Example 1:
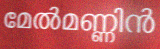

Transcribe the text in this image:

മേൽമണ്ണിൻ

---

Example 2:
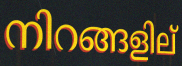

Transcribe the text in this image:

നിറങ്ങളില്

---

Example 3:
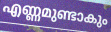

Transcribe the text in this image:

എണ്ണമുണ്ടാകും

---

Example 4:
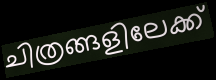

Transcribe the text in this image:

ചിത്രങ്ങളിലേക്ക്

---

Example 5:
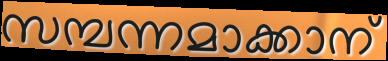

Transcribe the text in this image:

സമ്പന്നമാക്കാന്